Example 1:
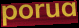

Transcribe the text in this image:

porua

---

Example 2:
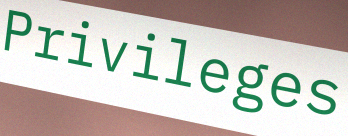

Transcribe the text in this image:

Privileges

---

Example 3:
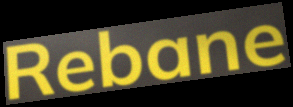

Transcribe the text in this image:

Rebane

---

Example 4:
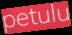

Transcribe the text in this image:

petulu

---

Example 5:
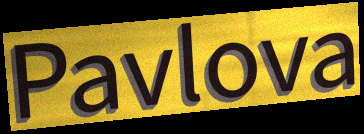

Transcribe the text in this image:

Pavlova